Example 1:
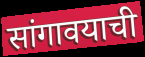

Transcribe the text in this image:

सांगावयाची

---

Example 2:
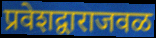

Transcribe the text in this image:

प्रवेशद्वाराजवळ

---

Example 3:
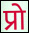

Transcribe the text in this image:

प्रो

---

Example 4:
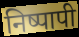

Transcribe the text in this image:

निष्पापी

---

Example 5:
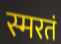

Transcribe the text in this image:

स्मरतं